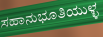
ಸಹಾನುಭೂತಿಯುಳ್ಳ